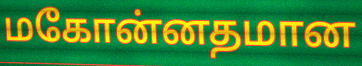
மகோன்னதமான